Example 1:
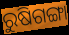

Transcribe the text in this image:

ରୁଷିଗଙ୍ଗା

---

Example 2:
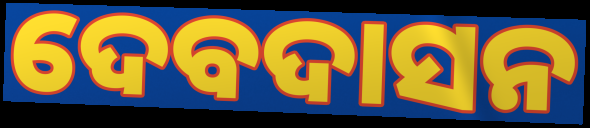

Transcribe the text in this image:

ଦେବଦାସନ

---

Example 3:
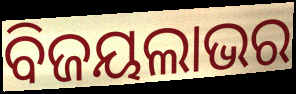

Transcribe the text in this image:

ବିଜୟଲାଭର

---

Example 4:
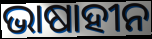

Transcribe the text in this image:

ଭାଷାହୀନ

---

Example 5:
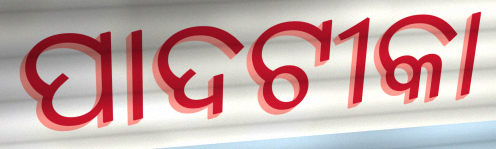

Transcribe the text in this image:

ପାଦଟୀକା